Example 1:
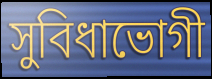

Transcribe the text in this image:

সুবিধাভোগী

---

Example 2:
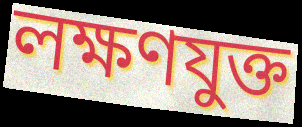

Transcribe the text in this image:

লক্ষণযুক্ত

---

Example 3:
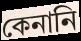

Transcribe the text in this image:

কেনানি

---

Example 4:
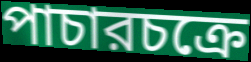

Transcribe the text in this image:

পাচারচক্রে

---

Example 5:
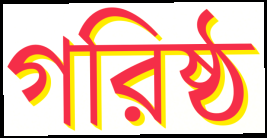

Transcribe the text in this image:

গরিষ্ঠ